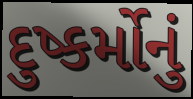
દુષ્કર્મોનું